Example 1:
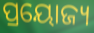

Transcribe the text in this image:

ପ୍ରୟୋଜ୍ୟ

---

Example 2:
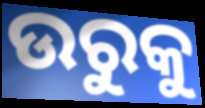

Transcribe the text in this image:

ଉରୁକୁ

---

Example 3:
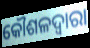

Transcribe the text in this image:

କୌଶଳଦ୍ୱାରା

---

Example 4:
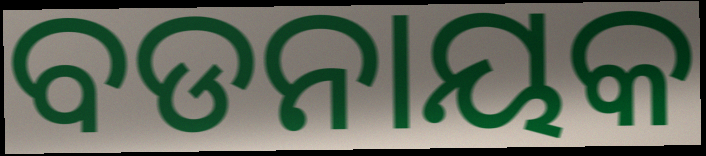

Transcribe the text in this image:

ବଡନାୟକ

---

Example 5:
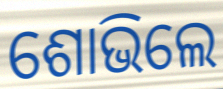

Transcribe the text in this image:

ଶୋଭିଲେ